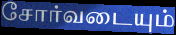
சோர்வடையும்